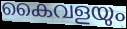
കൈവളയും